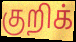
குறிக்